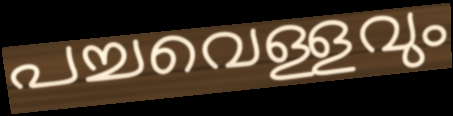
പച്ചവെള്ളവും